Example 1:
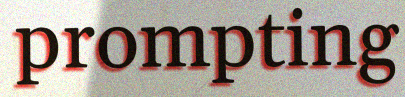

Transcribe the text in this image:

prompting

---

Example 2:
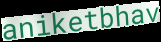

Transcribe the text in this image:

aniketbhav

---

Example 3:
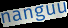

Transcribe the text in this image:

nanguu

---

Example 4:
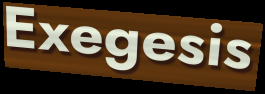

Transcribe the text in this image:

Exegesis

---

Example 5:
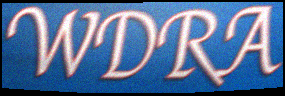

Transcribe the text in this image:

WDRA